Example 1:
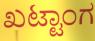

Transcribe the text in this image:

ಖಟ್ಟಾಂಗ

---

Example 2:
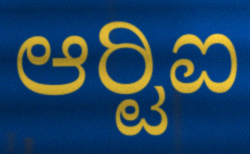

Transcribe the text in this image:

ಆರ್‍ಟಿಐ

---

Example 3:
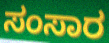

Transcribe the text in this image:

ಸಂಸಾರ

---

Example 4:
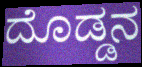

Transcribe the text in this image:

ದೊಡ್ಡನ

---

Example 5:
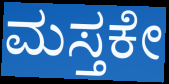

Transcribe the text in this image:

ಮಸ್ತಕೇ